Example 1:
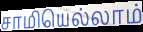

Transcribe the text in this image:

சாமியெல்லாம்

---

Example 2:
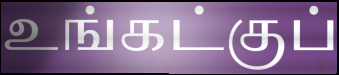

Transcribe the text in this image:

உங்கட்குப்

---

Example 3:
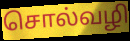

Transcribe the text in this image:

சொல்வழி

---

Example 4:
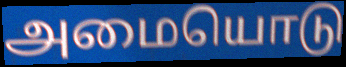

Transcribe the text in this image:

அமையொடு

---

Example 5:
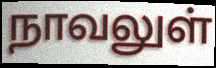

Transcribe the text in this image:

நாவலுள்